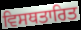
ਵਿਸਥਤਾਰਿਤ